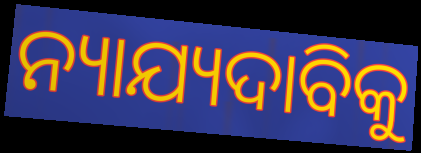
ନ୍ୟାଯ୍ୟଦାବିକୁ